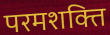
परमशक्ति